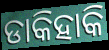
ଡାକିହାକି